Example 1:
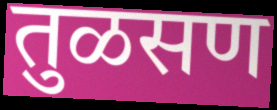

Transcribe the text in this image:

तुळसण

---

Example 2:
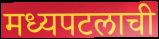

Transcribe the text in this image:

मध्यपटलाची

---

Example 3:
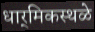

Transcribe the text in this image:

धार्मिकस्थळे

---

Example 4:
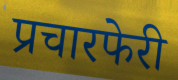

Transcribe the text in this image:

प्रचारफेरी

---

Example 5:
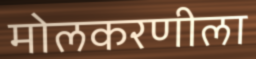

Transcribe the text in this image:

मोलकरणीला